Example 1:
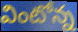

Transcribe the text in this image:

వింటోన్న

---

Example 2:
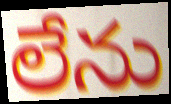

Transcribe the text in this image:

లేను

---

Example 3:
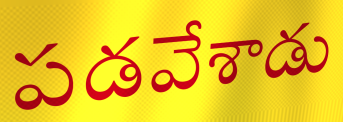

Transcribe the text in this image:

పడవేశాడు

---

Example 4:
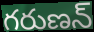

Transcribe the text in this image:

గరుణన్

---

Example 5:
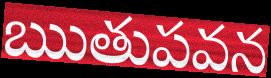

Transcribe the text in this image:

ఋతుపవన